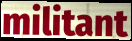
militant